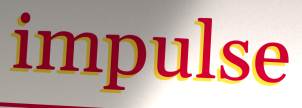
impulse